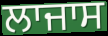
ਲਾਜਾਸ